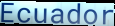
Ecuador